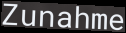
Zunahme